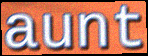
aunt